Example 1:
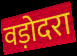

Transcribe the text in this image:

वड़ोदरा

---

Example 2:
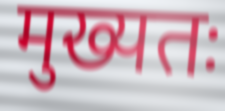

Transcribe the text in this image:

मुख्यतः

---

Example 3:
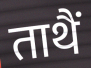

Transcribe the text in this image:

ताथैं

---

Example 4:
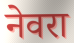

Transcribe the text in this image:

नेवरा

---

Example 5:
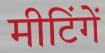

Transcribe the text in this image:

मीटिंगें